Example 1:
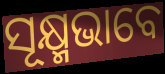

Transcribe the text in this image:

ସୂକ୍ଷ୍ମଭାବେ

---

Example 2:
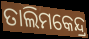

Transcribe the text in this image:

ତାଲିମକେନ୍ଦ୍ର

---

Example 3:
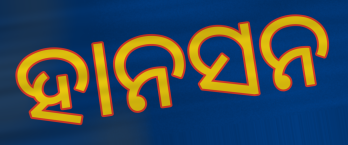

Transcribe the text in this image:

ହାନସନ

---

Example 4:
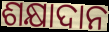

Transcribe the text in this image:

ଶକ୍ଷାଦାନ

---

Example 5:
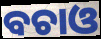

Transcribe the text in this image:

ବଚାଓ